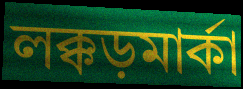
লক্কড়মার্কা